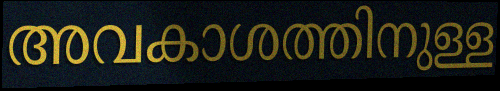
അവകാശത്തിനുള്ള